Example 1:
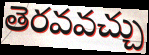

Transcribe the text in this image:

తెరవవచ్చు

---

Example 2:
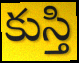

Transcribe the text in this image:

కుస్తి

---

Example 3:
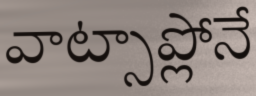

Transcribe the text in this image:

వాట్సాప్లోనే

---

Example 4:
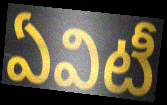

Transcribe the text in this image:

ఏవిటీ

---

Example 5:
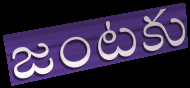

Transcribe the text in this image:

జంటకు